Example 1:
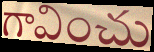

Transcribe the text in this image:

గావించు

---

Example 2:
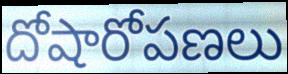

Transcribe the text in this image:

దోషారోపణలు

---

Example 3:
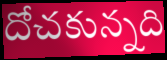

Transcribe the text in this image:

దోచకున్నది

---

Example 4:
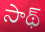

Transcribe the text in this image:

సాథ్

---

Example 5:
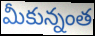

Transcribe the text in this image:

మీకున్నంత